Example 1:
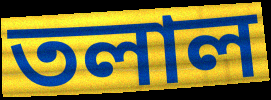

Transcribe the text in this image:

তলাল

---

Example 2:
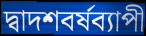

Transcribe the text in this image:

দ্বাদশবর্ষব্যাপী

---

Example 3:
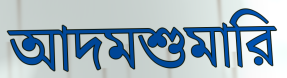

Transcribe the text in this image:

আদমশুমারি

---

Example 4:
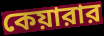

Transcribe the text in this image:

কেয়ারার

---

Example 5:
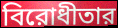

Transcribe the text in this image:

বিরোধীতার